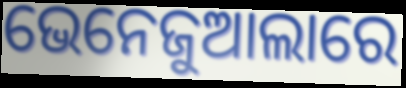
ଭେନେଜୁଆଲାରେ